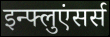
इन्फ्लुएंसर्स